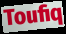
Toufiq